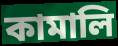
কামালি